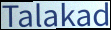
Talakad